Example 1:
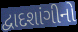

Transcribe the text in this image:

દ્વાદશાંગીનો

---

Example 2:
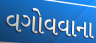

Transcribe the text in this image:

વગોવવાના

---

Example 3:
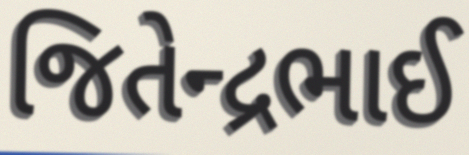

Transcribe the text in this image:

જિતેન્દ્રભાઈ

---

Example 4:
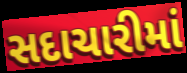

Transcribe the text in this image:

સદાચારીમાં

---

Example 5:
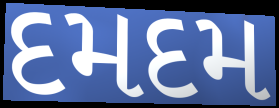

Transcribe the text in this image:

દમદમ